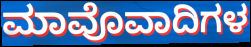
ಮಾವೊವಾದಿಗಳ